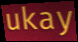
ukay